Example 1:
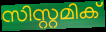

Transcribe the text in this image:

സിസ്റ്റമിക്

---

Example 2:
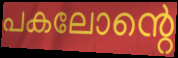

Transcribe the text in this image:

പകലോന്റെ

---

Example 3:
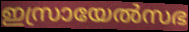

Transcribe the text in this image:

ഇസ്രായേൽസഭ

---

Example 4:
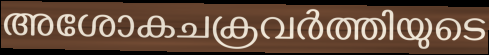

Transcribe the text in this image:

അശോകചക്രവർത്തിയുടെ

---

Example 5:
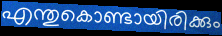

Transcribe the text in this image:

എന്തുകൊണ്ടായിരിക്കും